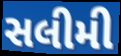
સલીમી